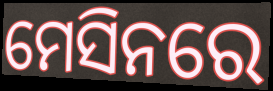
ମେସିନରେ